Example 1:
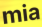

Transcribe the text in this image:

mia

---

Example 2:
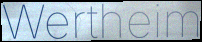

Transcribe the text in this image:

Wertheim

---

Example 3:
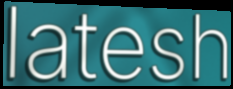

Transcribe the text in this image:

latesh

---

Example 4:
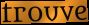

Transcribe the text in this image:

trouve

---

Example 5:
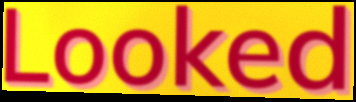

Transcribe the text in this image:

Looked